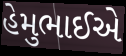
હેમુભાઈએ